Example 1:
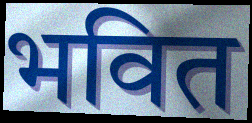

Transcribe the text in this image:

भवित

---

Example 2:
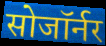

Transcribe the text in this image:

सोजॉर्नर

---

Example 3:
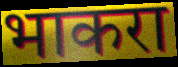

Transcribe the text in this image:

भाकरा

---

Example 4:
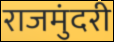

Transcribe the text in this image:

राजमुंदरी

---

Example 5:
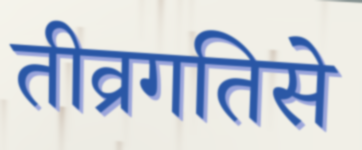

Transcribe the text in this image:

तीव्रगतिसे